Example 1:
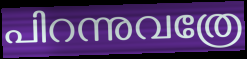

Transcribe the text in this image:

പിറന്നുവത്രേ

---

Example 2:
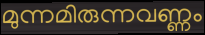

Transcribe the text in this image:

മുന്നമിരുന്നവണ്ണം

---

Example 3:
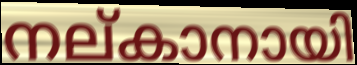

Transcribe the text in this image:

നല്കാനായി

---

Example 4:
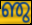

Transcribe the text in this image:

ഞു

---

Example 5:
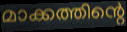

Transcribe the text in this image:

മാക്കത്തിന്റെ